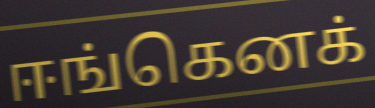
ஈங்கெனக்